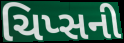
ચિપ્સની